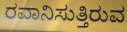
ರವಾನಿಸುತ್ತಿರುವ